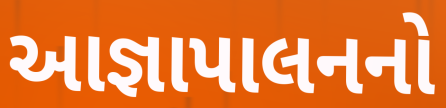
આજ્ઞાપાલનનો